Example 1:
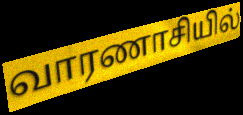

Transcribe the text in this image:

வாரணாசியில்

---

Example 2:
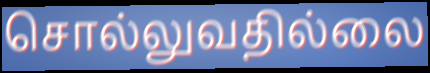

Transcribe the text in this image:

சொல்லுவதில்லை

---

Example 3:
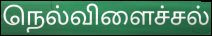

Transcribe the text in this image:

நெல்விளைச்சல்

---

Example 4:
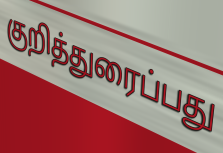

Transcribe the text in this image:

குறித்துரைப்பது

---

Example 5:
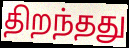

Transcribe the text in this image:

திறந்தது